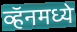
व्हॅनमध्ये